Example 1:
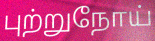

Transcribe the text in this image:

புற்றுநோய்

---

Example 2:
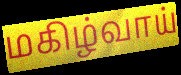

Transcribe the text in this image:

மகிழ்வாய்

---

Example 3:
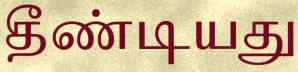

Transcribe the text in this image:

தீண்டியது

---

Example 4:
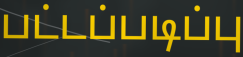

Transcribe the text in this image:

பட்டப்படிப்பு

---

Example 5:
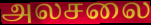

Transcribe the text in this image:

அலசலை